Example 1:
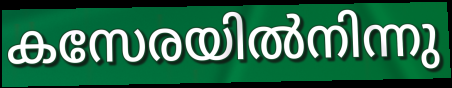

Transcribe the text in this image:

കസേരയിൽനിന്നു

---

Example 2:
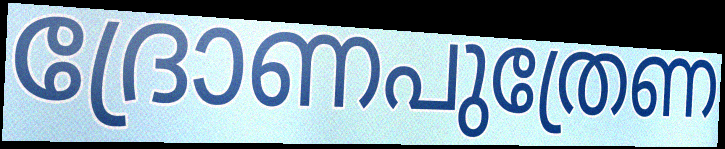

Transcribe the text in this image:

ദ്രോണപുത്രേണ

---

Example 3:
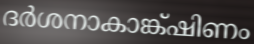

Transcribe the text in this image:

ദർശനാകാങ്ക്ഷിണം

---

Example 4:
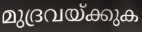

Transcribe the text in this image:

മുദ്രവയ്ക്കുക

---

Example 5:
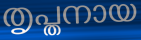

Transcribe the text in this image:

തൃപ്തനായ